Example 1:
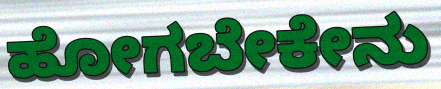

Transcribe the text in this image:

ಹೋಗಬೇಕೇನು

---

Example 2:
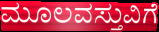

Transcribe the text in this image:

ಮೂಲವಸ್ತುವಿಗೆ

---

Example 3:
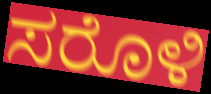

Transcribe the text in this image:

ಸರೊಳಿ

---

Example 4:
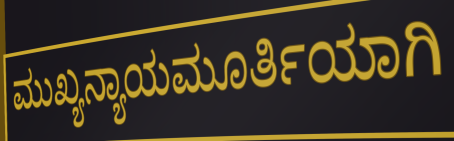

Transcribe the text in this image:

ಮುಖ್ಯನ್ಯಾಯಮೂರ್ತಿಯಾಗಿ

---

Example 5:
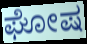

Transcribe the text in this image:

ಘೋಷ